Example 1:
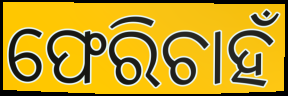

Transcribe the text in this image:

ଫେରିଚାହଁ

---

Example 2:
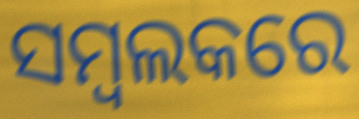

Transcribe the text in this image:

ସମ୍ବଲକରେ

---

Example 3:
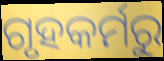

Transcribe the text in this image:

ଗୃହକର୍ମରୁ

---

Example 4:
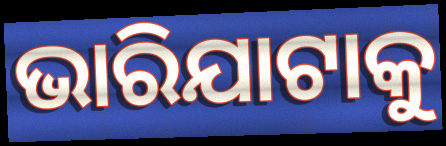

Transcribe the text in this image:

ଭାରିଯାଟାକୁ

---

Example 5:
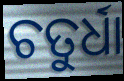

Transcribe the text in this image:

ଚତୁର୍ଧା